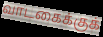
வாடகைக்குக்